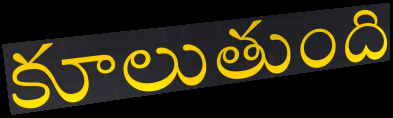
కూలుతుంది